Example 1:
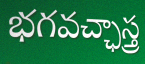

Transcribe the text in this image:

భగవచ్ఛాస్త్ర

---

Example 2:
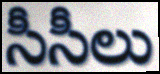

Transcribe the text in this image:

సీసీలు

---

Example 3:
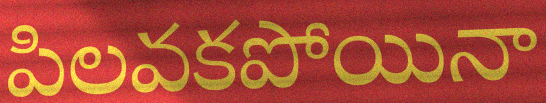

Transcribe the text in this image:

పిలవకపోయినా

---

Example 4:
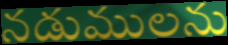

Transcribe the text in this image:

నడుములను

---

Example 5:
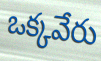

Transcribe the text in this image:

ఒక్కవేరు